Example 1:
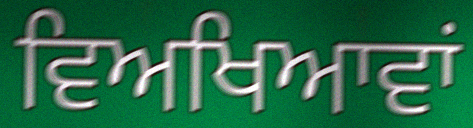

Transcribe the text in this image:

ਵਿਅਖਿਆਵਾਂ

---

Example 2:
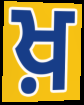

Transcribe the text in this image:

ਖ਼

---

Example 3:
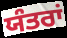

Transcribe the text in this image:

ਯੰਤਰਾਂ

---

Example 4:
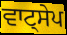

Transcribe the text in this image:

ਵਾਟ੍ਸੇਪ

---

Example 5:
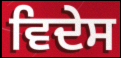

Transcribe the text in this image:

ਵਿਦੇਸ